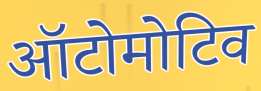
ऑटोमोटिव